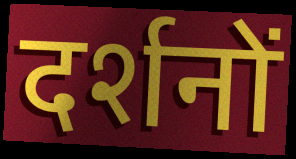
दर्शनों